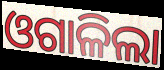
ଓଗାଳିଲା